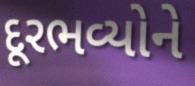
દૂરભવ્યોને